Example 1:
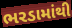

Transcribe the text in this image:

ભરડામાંથી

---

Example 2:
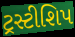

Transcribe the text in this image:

ટ્રસ્ટીશિપ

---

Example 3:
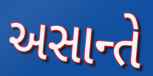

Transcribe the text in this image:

અસાન્તે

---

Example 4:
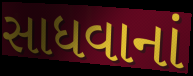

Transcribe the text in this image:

સાધવાનાં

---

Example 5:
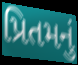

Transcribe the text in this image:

પ્રિતમનું